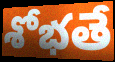
శోభతే